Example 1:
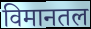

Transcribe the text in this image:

विमानतल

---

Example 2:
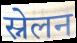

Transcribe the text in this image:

स्नेलन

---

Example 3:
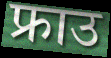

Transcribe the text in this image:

फ्राउ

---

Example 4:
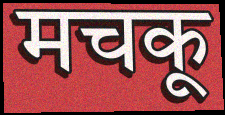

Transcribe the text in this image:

मचकू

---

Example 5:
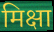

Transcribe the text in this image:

मिक्षा